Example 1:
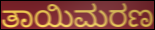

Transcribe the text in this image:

ತಾಯಿಮರಣ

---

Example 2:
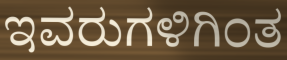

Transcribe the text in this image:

ಇವರುಗಳಿಗಿಂತ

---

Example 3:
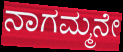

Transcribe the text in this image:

ನಾಗಮ್ಮನೇ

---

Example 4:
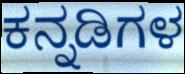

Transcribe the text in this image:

ಕನ್ನಡಿಗಳ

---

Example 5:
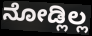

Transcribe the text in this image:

ನೋಡ್ಲಿಲ್ಲ